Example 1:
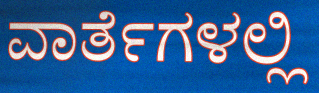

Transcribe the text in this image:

ವಾರ್ತೆಗಳಲ್ಲಿ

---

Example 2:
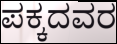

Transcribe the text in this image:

ಪಕ್ಕದವರ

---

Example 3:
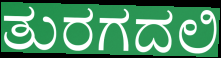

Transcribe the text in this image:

ತುರಗದಲಿ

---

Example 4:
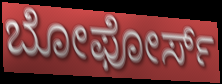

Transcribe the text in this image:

ಬೋಫೋರ್ಸ್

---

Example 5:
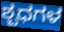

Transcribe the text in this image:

ಶ್ಬಧಗಳ